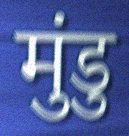
मुंडु